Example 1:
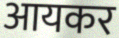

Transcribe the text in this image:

आयकर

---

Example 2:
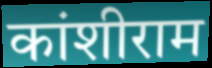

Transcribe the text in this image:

कांशीराम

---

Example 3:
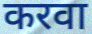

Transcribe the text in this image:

करवा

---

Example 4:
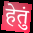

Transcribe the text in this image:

हेतुं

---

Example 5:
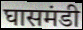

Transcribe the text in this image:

घासमंडी